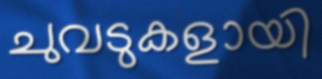
ചുവടുകളായി